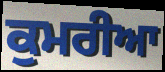
ਕੁਮਰੀਆ